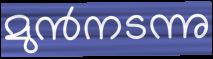
മുൻനടന്നു